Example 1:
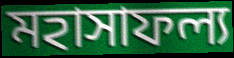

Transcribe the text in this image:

মহাসাফল্য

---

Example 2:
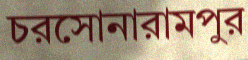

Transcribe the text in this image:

চরসোনারামপুর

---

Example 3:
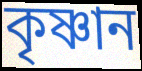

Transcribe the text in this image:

কৃষ্ণান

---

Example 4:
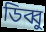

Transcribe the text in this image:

ডিব্বু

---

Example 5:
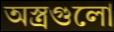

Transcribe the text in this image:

অস্ত্রগুলো